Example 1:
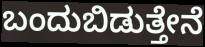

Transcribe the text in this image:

ಬಂದುಬಿಡುತ್ತೇನೆ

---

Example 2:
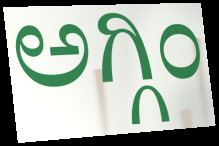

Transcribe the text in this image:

ಅಗ್ಗಿಂ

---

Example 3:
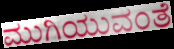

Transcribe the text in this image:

ಮುಗಿಯುವಂತೆ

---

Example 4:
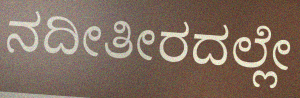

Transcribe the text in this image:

ನದೀತೀರದಲ್ಲೇ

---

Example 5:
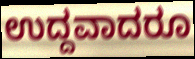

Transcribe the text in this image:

ಉದ್ದವಾದರೂ